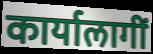
कार्यालागीं